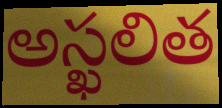
అస్ఖలిత